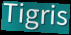
Tigris